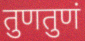
तुणतुणं